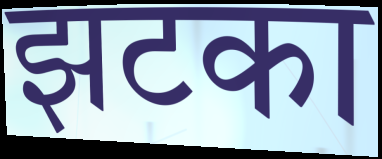
झटका